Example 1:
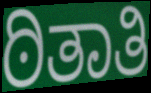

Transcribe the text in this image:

ಠಿತಾತಿ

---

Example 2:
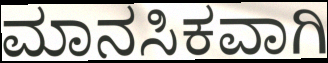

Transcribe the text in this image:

ಮಾನಸಿಕವಾಗಿ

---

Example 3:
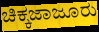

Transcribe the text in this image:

ಚಿಕ್ಕಜಾಜೂರು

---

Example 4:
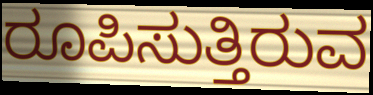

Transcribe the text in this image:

ರೂಪಿಸುತ್ತಿರುವ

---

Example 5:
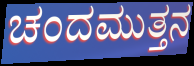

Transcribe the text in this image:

ಚಂದಮುತ್ತನ